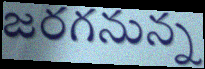
జరగనున్న